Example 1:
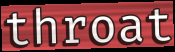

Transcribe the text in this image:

throat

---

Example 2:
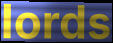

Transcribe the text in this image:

lords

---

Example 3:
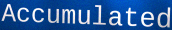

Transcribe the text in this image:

Accumulated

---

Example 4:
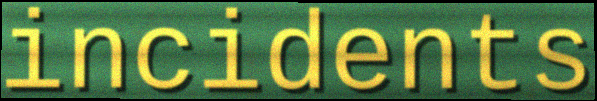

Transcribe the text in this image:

incidents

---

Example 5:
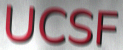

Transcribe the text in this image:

UCSF